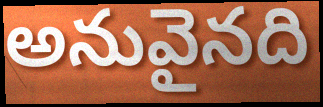
అనువైనది